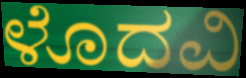
ಳೊದವಿ